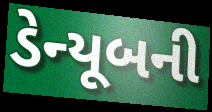
ડેન્યૂબની